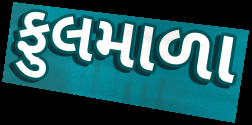
ફુલમાળા